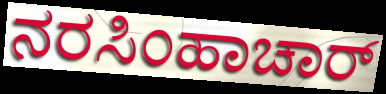
ನರಸಿಂಹಾಚಾರ್